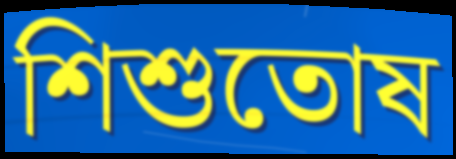
শিশুতোষ